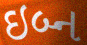
ઇબ્ન